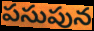
పసుపున